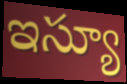
ఇస్యూ